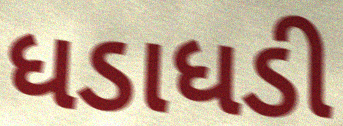
ધડાધડી